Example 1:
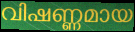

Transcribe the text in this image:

വിഷണ്ണമായ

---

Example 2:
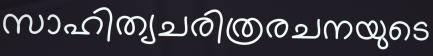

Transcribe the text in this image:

സാഹിത്യചരിത്രരചനയുടെ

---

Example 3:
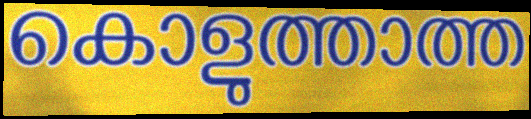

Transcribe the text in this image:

കൊളുത്താത്ത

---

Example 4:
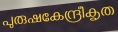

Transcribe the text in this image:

പുരുഷകേന്ദ്രീകൃത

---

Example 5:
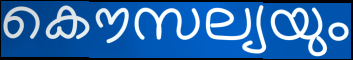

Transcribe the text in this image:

കൌസല്യയും